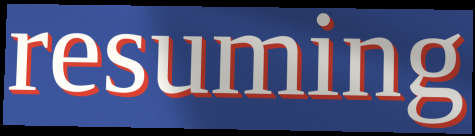
resuming